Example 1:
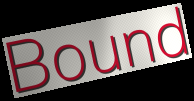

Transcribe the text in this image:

Bound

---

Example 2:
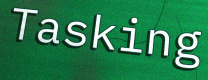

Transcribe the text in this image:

Tasking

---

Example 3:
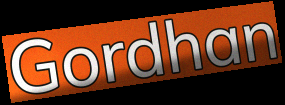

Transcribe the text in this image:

Gordhan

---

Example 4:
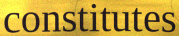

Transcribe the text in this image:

constitutes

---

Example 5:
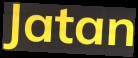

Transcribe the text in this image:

Jatan